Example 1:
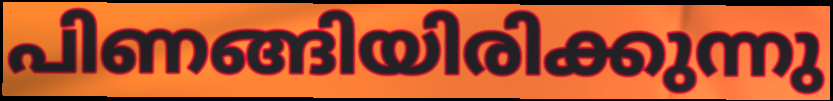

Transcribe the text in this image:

പിണങ്ങിയിരിക്കുന്നു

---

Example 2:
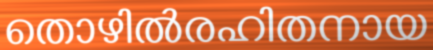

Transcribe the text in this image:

തൊഴിൽരഹിതനായ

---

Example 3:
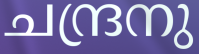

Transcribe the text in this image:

ചന്ദ്രനു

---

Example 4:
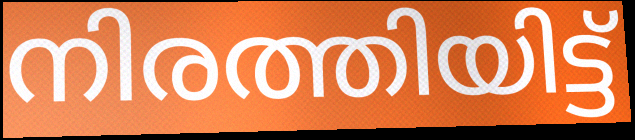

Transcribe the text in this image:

നിരത്തിയിട്ട്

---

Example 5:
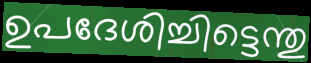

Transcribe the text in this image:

ഉപദേശിച്ചിട്ടെന്തു